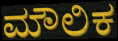
ಮೌಲಿಕ